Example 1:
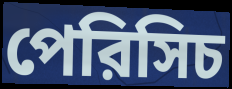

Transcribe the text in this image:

পেরিসিচ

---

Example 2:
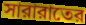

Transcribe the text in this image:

সারারাতের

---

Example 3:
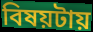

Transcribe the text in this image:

বিষয়টায়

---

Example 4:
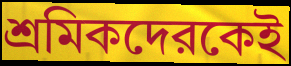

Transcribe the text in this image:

শ্রমিকদেরকেই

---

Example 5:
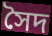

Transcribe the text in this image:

সৈদ